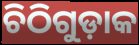
ଚିଠିଗୁଡ଼ାକ